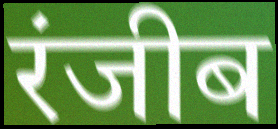
रंजीब